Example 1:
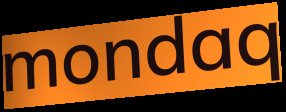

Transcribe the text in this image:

mondaq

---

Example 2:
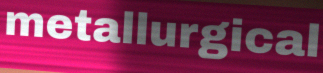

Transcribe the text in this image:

metallurgical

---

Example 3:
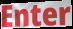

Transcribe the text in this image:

Enter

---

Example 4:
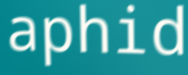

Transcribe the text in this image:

aphid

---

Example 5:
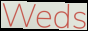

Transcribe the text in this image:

Weds